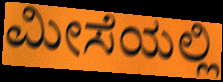
ಮೀಸೆಯಲ್ಲಿ